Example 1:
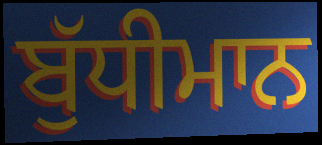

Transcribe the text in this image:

ਬੁੱਧੀਮਾਨ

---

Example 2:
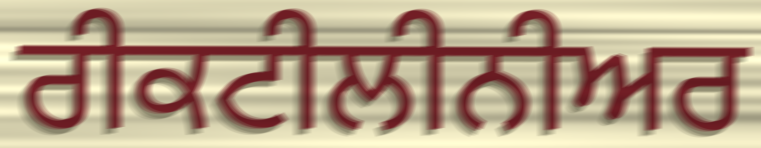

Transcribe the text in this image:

ਰੀਕਟੀਲੀਨੀਅਰ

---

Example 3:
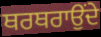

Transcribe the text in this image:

ਥਰਥਰਾਉਂਦੇ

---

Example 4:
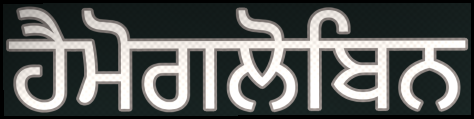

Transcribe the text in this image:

ਹੈਮੋਗਲੋਬਿਨ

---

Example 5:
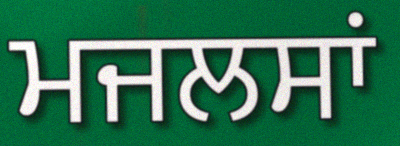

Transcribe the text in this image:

ਮਜਲਸਾਂ